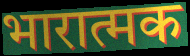
भारात्मक